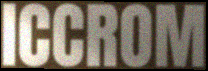
ICCROM